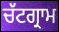
ਚੱਟਗ੍ਰਾਮ